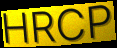
HRCP